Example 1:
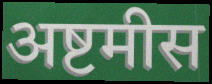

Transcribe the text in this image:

अष्टमीस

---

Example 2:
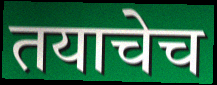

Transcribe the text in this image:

तयाचेच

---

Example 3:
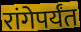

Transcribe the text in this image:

रांगेपर्यंत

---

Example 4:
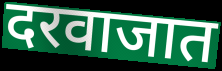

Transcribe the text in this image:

दरवाजात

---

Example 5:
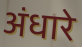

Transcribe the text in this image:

अंधारे